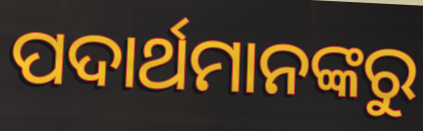
ପଦାର୍ଥମାନଙ୍କରୁ